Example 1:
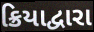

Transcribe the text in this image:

ક્રિયાદ્વારા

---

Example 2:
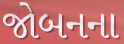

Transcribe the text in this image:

જોબનના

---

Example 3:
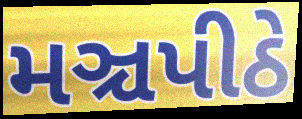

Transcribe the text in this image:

મઞ્ચપીઠે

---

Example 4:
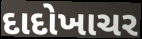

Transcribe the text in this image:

દાદોખાચર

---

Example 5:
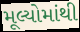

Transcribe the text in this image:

મૂલ્યોમાંથી